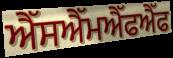
ਐੱਸਐੱਮਐੱਫਐੱਫ